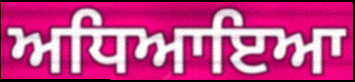
ਅਧਿਆਇਆ